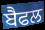
ਬੈਫਲ